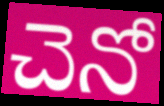
చెనో